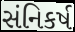
સંનિકર્ષ